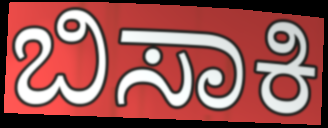
ಬಿಸಾಕಿ